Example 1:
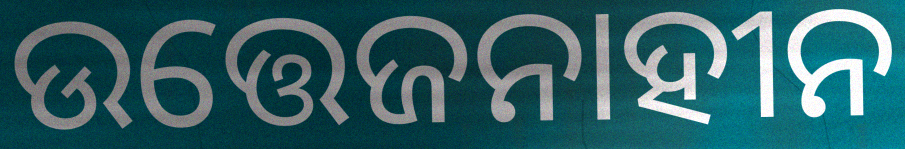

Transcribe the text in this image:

ଉତ୍ତେଜନାହୀନ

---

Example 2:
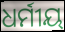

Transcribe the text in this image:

ଧର୍ମୀୟ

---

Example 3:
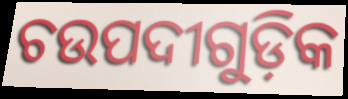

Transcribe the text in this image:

ଚଉପଦୀଗୁଡ଼ିକ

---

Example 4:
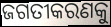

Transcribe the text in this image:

ଜଗତୀକରଣକୁ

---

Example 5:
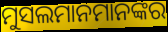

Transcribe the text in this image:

ମୁସଲମାନମାନଙ୍କର